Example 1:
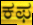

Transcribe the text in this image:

ಕಫ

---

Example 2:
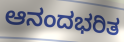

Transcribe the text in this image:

ಆನಂದಭರಿತ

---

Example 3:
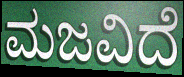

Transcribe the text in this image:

ಮಜವಿದೆ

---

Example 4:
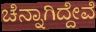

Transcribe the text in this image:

ಚೆನ್ನಾಗಿದ್ದೇವೆ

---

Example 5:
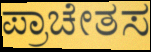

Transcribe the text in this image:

ಪ್ರಾಚೇತಸ